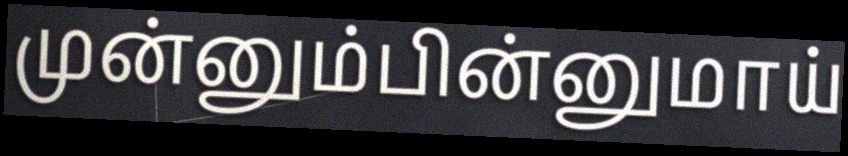
முன்னும்பின்னுமாய்